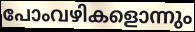
പോംവഴികളൊന്നും